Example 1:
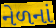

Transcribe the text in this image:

નેળનાં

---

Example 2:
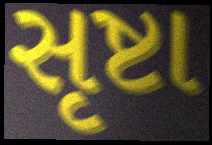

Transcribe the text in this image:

સૃષ્ટા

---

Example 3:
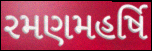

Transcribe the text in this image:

રમણમહર્ષિ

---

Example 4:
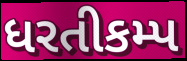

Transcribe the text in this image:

ધરતીકમ્પ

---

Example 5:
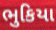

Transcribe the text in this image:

ભુકિયા